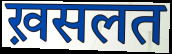
ख़सलत